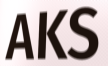
AKS